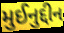
મુઈનુદ્દીન